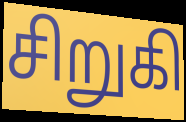
சிறுகி